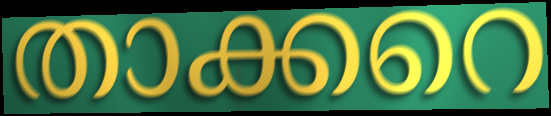
താക്കറെ